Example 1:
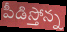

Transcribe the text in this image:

పీడిస్తోన్న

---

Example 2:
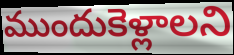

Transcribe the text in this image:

ముందుకెళ్లాలని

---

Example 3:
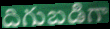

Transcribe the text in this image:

దిగుబడిగా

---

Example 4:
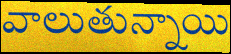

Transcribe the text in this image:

వాలుతున్నాయి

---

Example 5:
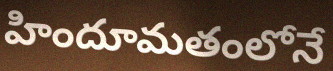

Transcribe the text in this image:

హిందూమతంలోనే